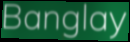
Banglay